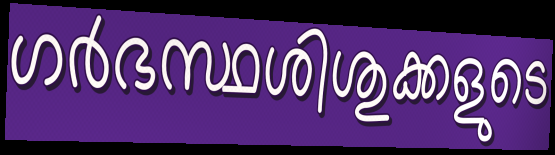
ഗർഭസ്ഥശിശുക്കളുടെ